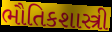
ભૌતિકશાસ્ત્રી